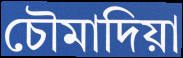
চৌমাদিয়া